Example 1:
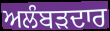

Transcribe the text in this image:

ਅਲੰਬੜਦਾਰ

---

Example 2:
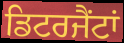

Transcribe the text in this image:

ਡਿਟਰਜੈਂਟਾਂ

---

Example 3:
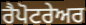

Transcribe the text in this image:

ਰੈਪੋਟਰੇਅਰ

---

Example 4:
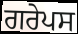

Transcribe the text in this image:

ਗਰੇਪਸ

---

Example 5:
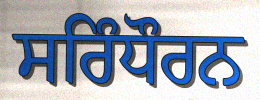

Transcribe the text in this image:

ਸਰਿੰਧੌਰਨ